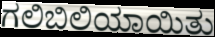
ಗಲಿಬಿಲಿಯಾಯಿತು